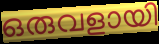
ഒരുവളായി